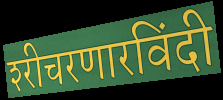
श्रीचरणारविंदी